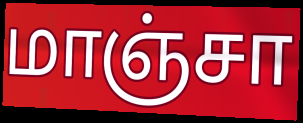
மாஞ்சா